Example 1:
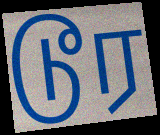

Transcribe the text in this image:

டூர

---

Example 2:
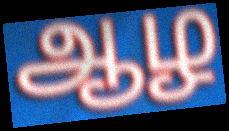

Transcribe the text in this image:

ஆழ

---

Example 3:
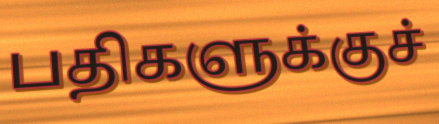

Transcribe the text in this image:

பதிகளுக்குச்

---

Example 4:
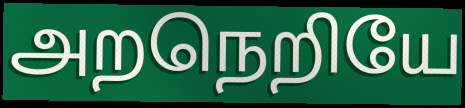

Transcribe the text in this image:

அறநெறியே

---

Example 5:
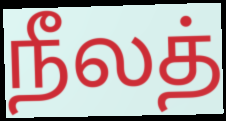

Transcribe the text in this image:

நீலத்